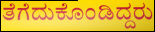
ತೆಗೆದುಕೊಂಡಿದ್ದರು